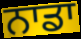
ਨਾਡਾ